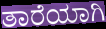
ತಾರೆಯಾಗಿ